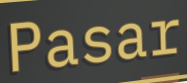
Pasar